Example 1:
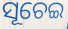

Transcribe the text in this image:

ସୂଚେଇ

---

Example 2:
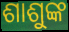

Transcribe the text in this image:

ଶାଶୁଙ୍କ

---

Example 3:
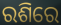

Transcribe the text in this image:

ରଶିରେ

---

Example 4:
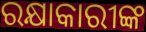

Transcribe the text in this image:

ରକ୍ଷାକାରୀଙ୍କ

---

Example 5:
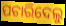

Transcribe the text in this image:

ପଚାରିଦେଲୁ